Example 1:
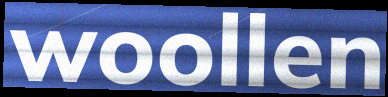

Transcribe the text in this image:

woollen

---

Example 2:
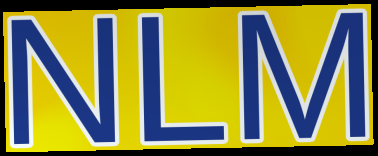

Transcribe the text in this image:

NLM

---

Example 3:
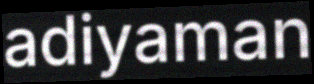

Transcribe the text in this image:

adiyaman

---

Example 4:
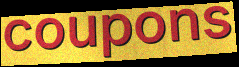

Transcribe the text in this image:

coupons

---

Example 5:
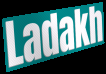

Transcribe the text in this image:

Ladakh